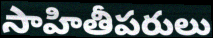
సాహితీపరులు